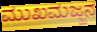
ಮುಖಮಜ್ಜನ